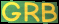
GRB